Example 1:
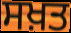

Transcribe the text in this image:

ਸਖ਼ਤ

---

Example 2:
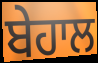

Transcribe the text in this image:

ਬੇਹਾਲ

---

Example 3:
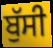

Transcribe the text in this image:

ਬੁੱਸੀ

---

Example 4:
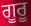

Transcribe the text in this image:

ਗੂਰੂ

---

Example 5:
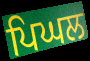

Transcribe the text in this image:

ਪਿਘਲ